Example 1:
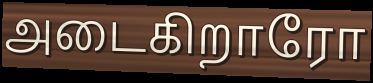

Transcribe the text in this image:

அடைகிறாரோ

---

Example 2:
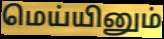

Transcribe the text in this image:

மெய்யினும்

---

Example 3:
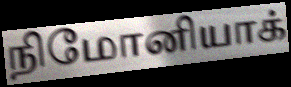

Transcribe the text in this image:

நிமோனியாக்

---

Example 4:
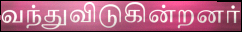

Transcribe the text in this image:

வந்துவிடுகின்றனர்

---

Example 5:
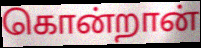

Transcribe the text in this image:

கொன்றான்